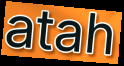
atah